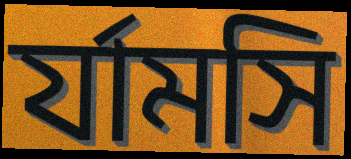
র্যামসি